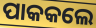
ପାକକଲେ